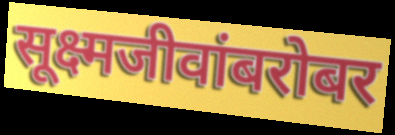
सूक्ष्मजीवांबरोबर